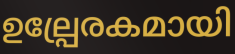
ഉല്പ്രേരകമായി